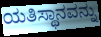
ಯತಿಸ್ಥಾನವನ್ನು